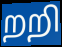
றறி